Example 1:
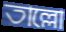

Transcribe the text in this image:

তাল্লো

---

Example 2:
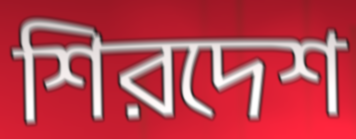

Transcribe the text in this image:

শিরদেশ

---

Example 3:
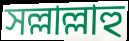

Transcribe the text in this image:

সল্লাল্লাহু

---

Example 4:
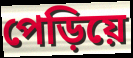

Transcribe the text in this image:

পেড়িয়ে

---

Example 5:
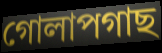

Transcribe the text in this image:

গোলাপগাছ